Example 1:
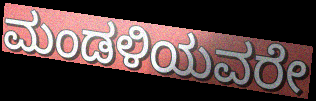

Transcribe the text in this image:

ಮಂಡಳಿಯವರೇ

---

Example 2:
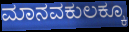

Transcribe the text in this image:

ಮಾನವಕುಲಕ್ಕೂ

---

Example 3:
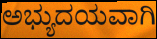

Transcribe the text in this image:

ಅಭ್ಯುದಯವಾಗಿ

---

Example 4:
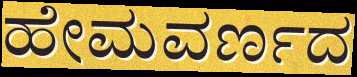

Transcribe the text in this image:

ಹೇಮವರ್ಣದ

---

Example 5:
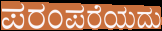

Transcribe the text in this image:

ಪರಂಪರೆಯದು